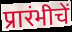
प्रारंभीचें